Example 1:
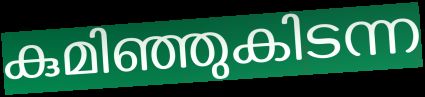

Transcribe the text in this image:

കുമിഞ്ഞുകിടന്ന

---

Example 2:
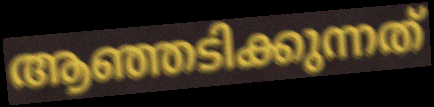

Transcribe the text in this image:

ആഞ്ഞടിക്കുന്നത്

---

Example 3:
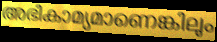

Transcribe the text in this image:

അഭികാമ്യമാണെങ്കിലും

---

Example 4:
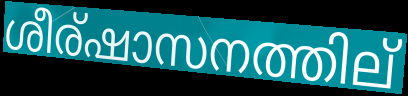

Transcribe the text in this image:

ശീര്ഷാസനത്തില്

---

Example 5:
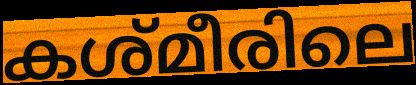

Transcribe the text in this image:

കശ്മീരിലെ